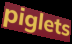
piglets